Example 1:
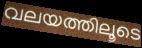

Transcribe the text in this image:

വലയത്തിലൂടെ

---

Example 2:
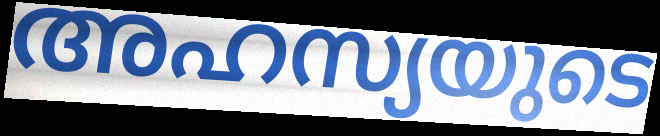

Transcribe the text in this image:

അഹസ്യയുടെ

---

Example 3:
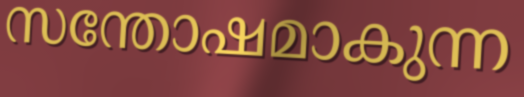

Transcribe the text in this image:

സന്തോഷമാകുന്ന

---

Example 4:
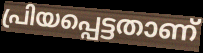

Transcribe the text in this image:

പ്രിയപ്പെട്ടതാണ്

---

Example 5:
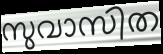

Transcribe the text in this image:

സുവാസിത